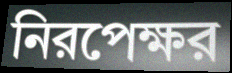
নিরপেক্ষর